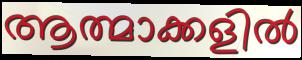
ആത്മാക്കളിൽ